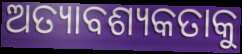
ଅତ୍ୟାବଶ୍ୟକତାକୁ